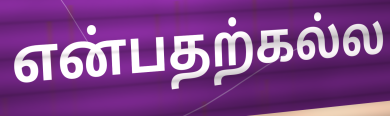
என்பதற்கல்ல